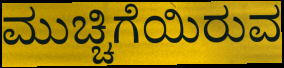
ಮುಚ್ಚಿಗೆಯಿರುವ